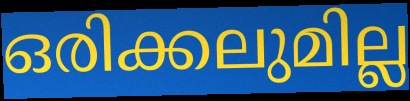
ഒരിക്കലുമില്ല